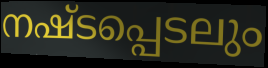
നഷ്ടപ്പെടലും